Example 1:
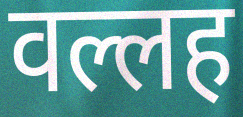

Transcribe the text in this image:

वल्लह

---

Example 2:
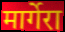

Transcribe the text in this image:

मार्गेरा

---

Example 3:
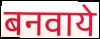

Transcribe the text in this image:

बनवाये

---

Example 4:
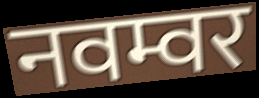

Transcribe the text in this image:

नवम्वर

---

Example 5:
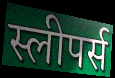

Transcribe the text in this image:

स्लीपर्स